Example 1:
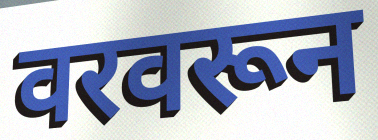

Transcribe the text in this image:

वरवरून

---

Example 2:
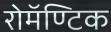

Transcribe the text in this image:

रोमॅण्टिक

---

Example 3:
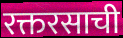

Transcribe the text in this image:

रक्तरसाची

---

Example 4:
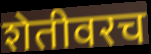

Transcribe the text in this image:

शेतीवरच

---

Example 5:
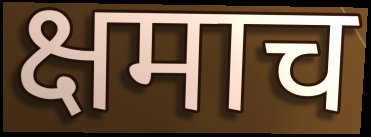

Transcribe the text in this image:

क्षमाच